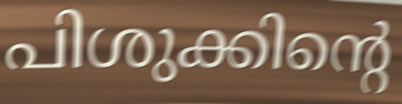
പിശുക്കിന്റെ